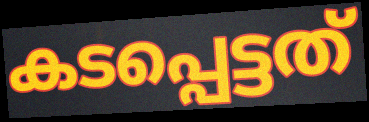
കടപ്പെട്ടത്